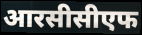
आरसीसीएफ